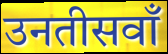
उनतीसवाँ